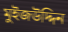
মুইজউদ্দিন